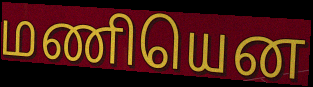
மணியென